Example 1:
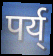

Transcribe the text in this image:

पर्य्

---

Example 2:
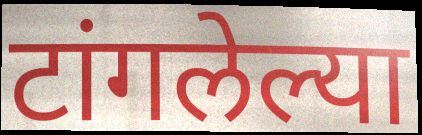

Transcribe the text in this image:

टांगलेल्या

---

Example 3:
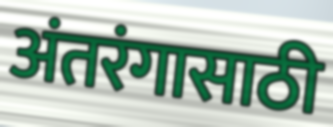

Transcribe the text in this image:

अंतरंगासाठी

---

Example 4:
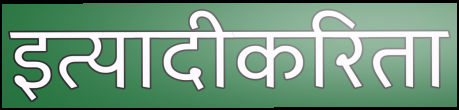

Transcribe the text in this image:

इत्यादीकरिता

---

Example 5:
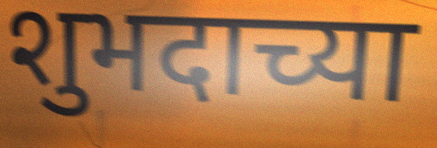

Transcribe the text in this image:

शुभदाच्या